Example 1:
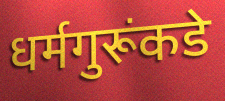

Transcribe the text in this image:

धर्मगुरूंकडे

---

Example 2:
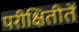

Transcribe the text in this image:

परीक्षितीतें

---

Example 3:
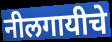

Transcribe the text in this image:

नीलगायीचे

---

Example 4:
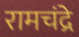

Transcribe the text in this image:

रामचंद्रे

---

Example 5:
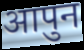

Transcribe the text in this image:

आपुन